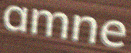
amne